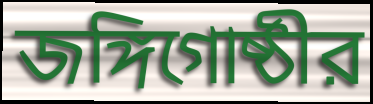
জঙ্গিগোষ্ঠীর